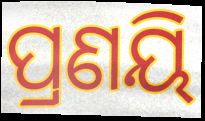
ପ୍ରଣୟି